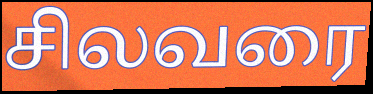
சிலவரை